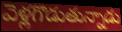
వెళ్లగొడుతున్నాడు